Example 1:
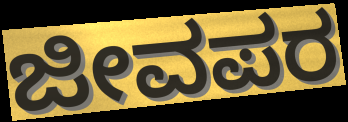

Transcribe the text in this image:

ಜೀವಪರ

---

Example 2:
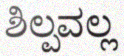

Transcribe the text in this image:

ಶಿಲ್ಪವಲ್ಲ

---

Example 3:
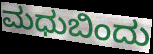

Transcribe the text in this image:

ಮಧುಬಿಂದು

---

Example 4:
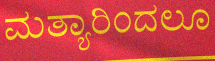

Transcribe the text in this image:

ಮತ್ಯಾರಿಂದಲೂ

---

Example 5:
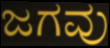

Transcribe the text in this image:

ಜಗವು